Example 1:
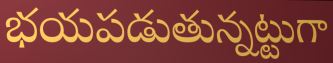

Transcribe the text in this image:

భయపడుతున్నట్టుగా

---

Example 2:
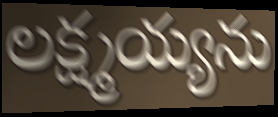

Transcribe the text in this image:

లక్ష్మయ్యను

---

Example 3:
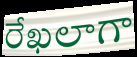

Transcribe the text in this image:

రేఖలాగా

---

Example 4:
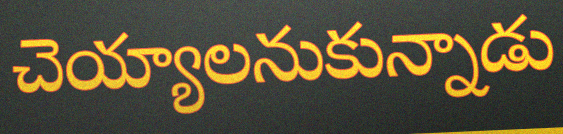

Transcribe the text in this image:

చెయ్యాలనుకున్నాడు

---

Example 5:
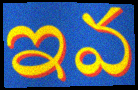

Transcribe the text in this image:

ఇవ